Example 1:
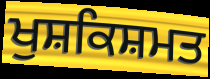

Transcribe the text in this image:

ਖੁਸ਼ਕਿਸ਼ਮਤ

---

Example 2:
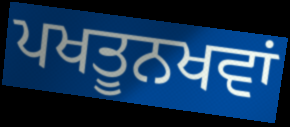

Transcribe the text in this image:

ਪਖਤੂਨਖਵਾਂ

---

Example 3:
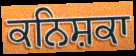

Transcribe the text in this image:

ਕਨਿਸ਼ਕਾ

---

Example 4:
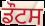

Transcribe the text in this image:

ਡੌਟਸ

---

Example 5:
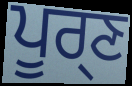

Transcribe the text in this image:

ਪੂਰ੍ਣ